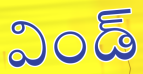
విండ్